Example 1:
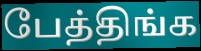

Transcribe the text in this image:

பேத்திங்க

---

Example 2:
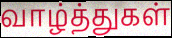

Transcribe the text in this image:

வாழ்த்துகள்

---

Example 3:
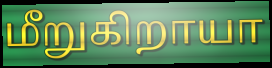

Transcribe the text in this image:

மீறுகிறாயா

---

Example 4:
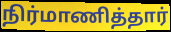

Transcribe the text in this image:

நிர்மாணித்தார்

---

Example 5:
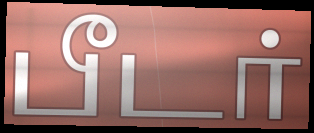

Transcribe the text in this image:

பீடர்